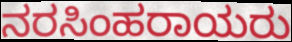
ನರಸಿಂಹರಾಯರು